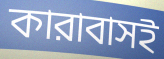
কারাবাসই